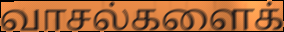
வாசல்களைக்